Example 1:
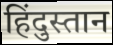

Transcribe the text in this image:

हिंदुस्‍तान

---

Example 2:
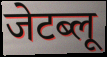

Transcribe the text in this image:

जेटब्लू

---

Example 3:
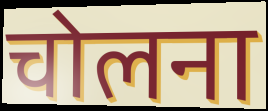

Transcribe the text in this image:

चोलना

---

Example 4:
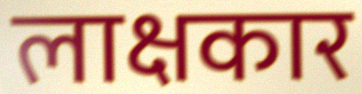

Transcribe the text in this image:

लाक्षकार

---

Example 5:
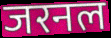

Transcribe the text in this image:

जरनल